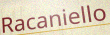
Racaniello